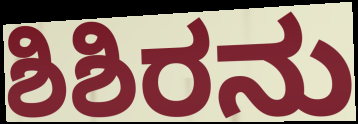
ಶಿಶಿರನು